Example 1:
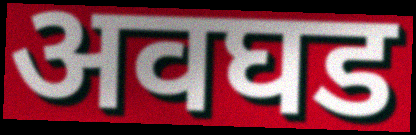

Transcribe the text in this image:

अवघड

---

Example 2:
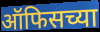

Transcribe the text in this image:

ऑफिसच्या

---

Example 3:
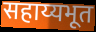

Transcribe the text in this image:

सहाय्यभूत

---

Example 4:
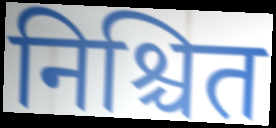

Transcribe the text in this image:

निश्चित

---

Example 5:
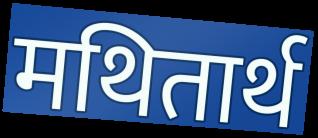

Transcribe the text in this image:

मथितार्थ